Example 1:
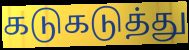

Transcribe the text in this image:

கடுகடுத்து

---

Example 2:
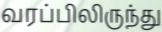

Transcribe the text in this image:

வரப்பிலிருந்து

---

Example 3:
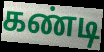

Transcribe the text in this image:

கண்டி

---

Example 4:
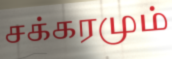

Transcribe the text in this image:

சக்கரமும்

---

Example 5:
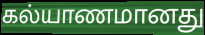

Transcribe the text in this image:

கல்யாணமானது